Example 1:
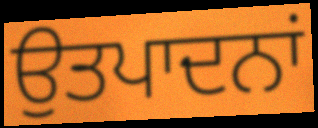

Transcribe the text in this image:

ਉਤਪਾਦਨਾਂ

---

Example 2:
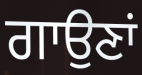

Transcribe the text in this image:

ਗਾਉਣਾਂ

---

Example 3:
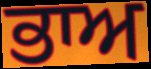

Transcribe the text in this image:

ਭਾਅ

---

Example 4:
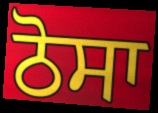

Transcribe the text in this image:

ਠੋਸਾ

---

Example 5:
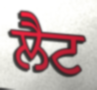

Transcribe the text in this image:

ਲੈਟ